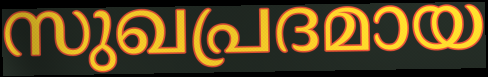
സുഖപ്രദമായ